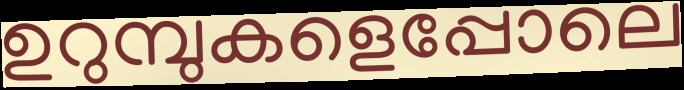
ഉറുമ്പുകളെപ്പോലെ